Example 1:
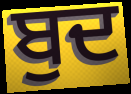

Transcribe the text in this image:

ਬੁਦ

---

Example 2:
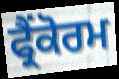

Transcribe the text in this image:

ਫ੍ਰੈਂਕੋਰਮ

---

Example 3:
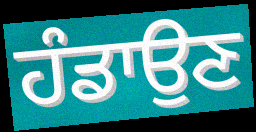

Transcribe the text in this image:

ਹੰਡਾਉਣ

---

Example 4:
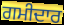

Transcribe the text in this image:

ਗਮੀਦਾਰ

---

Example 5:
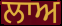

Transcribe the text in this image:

ਲਾਅ